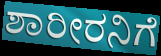
ಶಾರೀರನಿಗೆ